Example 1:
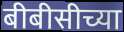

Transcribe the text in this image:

बीबीसीच्या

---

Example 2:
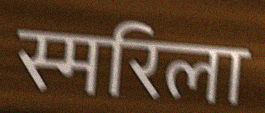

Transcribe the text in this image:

स्मरिला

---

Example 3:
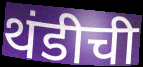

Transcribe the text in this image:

थंडीची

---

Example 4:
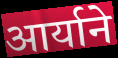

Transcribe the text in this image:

आर्याने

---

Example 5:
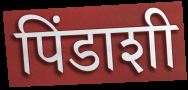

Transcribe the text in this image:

पिंडाशी